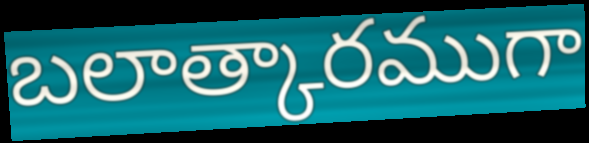
బలాత్కారముగా